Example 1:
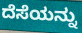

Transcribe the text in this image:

ದೆಸೆಯನ್ನು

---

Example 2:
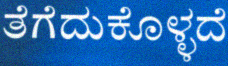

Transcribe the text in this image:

ತೆಗೆದುಕೊಳ್ಳದೆ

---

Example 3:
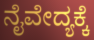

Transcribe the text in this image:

ನೈವೇದ್ಯಕ್ಕೆ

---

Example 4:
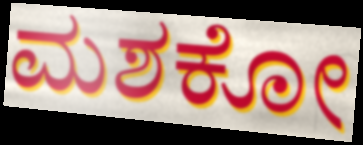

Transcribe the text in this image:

ಮಶಕೋ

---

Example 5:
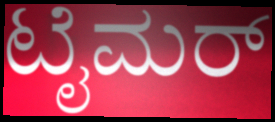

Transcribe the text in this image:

ಟೈಮರ್